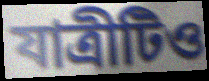
যাত্রীটিও